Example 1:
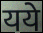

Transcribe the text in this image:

यये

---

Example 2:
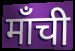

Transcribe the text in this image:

माँची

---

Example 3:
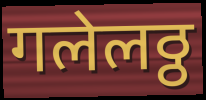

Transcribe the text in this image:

गलेलठ्ठ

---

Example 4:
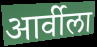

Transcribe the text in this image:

आर्वीला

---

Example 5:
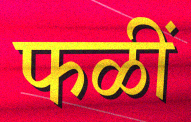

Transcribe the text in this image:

फळीं